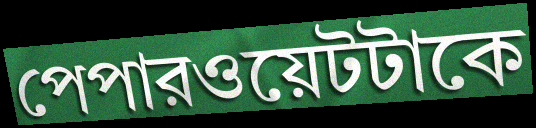
পেপারওয়েটটাকে